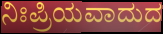
ನಿಃಪ್ರಿಯವಾದುದ